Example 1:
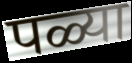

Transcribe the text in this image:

पळ्या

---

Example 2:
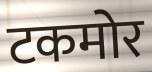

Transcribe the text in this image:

टकमोर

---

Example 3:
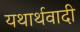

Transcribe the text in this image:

यथार्थवादी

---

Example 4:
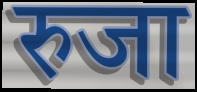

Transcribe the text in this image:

रुजा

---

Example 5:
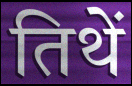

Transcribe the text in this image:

तिथें